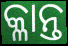
କ୍ଳାନ୍ତ